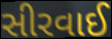
સીરવાઈ